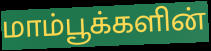
மாம்பூக்களின்